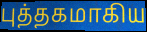
புத்தகமாகிய